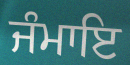
ਜੰਮਾਇ